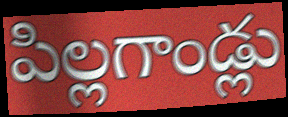
పిల్లగాండ్లు